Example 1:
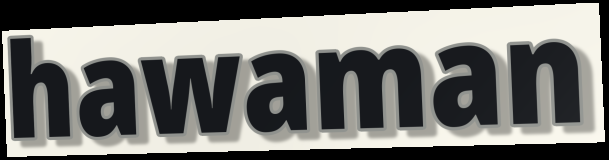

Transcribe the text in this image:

hawaman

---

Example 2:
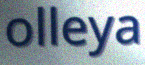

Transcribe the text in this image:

olleya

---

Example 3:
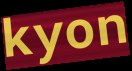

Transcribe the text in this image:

kyon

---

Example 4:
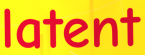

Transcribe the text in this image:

latent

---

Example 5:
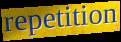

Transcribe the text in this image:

repetition